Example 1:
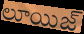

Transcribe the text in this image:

లూయిజ్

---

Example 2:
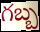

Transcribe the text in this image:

గబ్బ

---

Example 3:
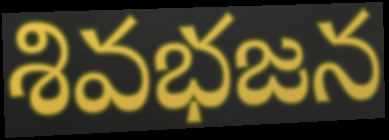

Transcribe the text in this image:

శివభజన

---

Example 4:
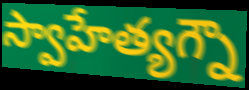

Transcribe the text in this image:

స్వాహేత్యగ్నౌ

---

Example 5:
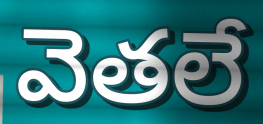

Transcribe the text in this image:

వెతలే